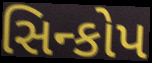
સિન્કોપ